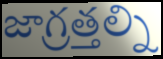
జాగ్రత్తల్ని